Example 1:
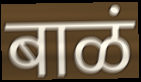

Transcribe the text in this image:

बाळं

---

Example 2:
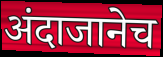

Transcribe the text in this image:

अंदाजानेच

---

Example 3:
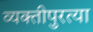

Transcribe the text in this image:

व्यक्तीपुरत्या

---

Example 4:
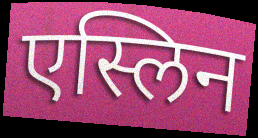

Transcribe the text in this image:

एस्लिन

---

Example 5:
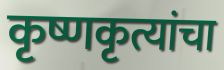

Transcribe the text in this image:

कृष्णकृत्यांचा